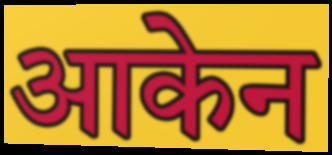
आकेन